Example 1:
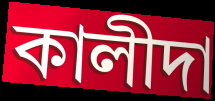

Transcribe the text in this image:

কালীদা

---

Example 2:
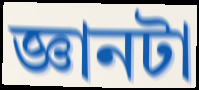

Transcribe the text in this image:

জ্ঞানটা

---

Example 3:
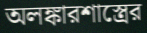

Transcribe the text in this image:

অলঙ্কারশাস্ত্রের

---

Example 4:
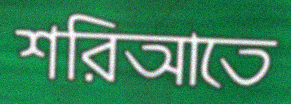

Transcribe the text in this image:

শরিআতে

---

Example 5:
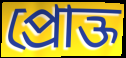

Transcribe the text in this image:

প্রোক্ত